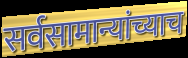
सर्वसामान्यांच्याच